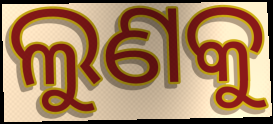
ଲୁଣକୁ